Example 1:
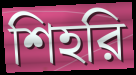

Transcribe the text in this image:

শিহরি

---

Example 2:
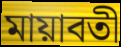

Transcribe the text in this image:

মায়াবতী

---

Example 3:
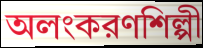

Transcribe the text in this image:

অলংকরণশিল্পী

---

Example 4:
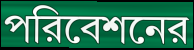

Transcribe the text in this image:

পরিবেশনের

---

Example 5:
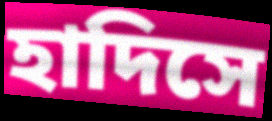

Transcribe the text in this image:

হাদিসে